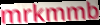
mrkmmb